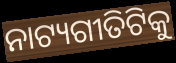
ନାଟ୍ୟଗୀତିଟିକୁ